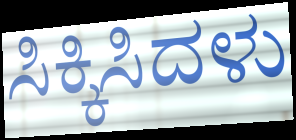
ಸಿಕ್ಕಿಸಿದಳು